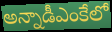
అన్నాడీఎంకేలో